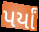
પર્યાં